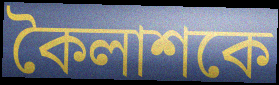
কৈলাশকে